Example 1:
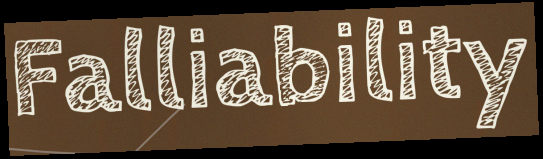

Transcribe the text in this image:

Falliability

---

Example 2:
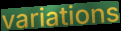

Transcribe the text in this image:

variations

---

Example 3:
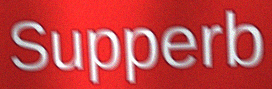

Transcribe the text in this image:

Supperb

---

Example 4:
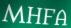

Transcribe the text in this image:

MHFA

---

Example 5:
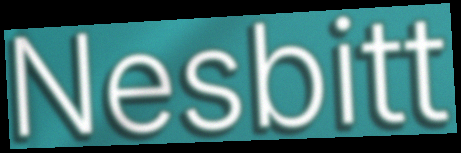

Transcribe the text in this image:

Nesbitt